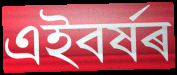
এইবৰ্ষৰ